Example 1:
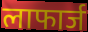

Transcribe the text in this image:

लाफार्ज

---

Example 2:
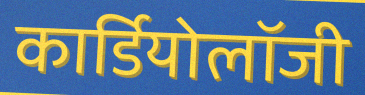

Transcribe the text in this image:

कार्डियोलॉजी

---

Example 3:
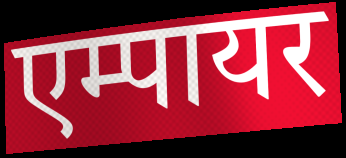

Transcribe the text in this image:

एम्पायर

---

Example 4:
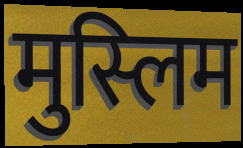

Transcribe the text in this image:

मुस्‍लिम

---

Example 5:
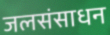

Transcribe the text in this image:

जलसंसाधन